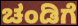
ಚಂಡಿಗೆ